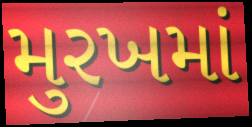
મુરખમાં